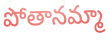
పోతానమ్మా